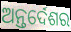
ଅନ୍ତର୍ଦେଶର